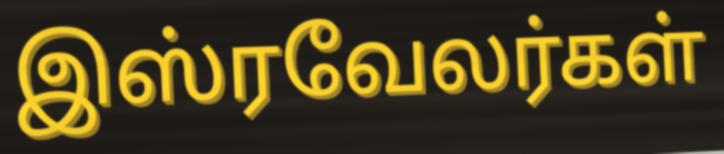
இஸ்ரவேலர்கள்